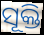
ସୂକ୍ତି